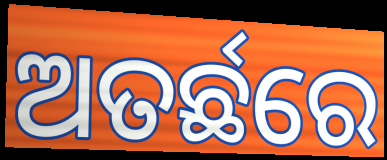
ଅତର୍ଛରେ